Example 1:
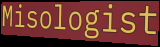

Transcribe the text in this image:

Misologist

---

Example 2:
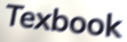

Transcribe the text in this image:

Texbook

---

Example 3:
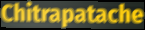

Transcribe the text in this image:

Chitrapatache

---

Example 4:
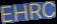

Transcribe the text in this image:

EHRC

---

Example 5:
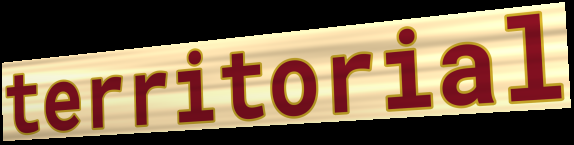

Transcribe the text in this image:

territorial